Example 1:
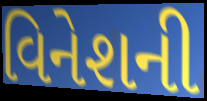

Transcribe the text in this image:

વિનેશની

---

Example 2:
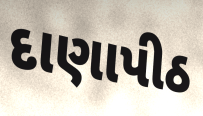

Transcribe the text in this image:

દાણાપીઠ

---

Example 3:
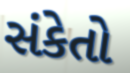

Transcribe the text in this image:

સંકેતો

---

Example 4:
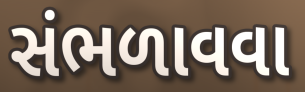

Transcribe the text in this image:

સંભળાવવા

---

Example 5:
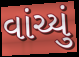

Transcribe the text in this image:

વાંચ્યું